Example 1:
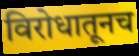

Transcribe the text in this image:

विरोधातूनच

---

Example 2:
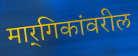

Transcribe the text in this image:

मार्गिकांवरील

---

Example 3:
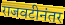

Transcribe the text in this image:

राजवटीनंतर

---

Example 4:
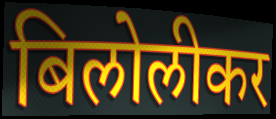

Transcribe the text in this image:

बिलोलीकर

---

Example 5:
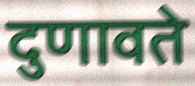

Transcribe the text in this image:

दुणावते